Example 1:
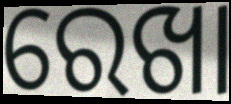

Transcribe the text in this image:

ରେଖା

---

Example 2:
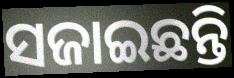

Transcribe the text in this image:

ସଜାଇଛନ୍ତି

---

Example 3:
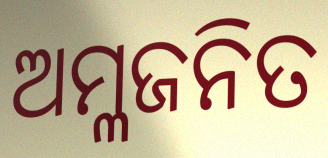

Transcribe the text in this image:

ଅମ୍ଳଜନିତ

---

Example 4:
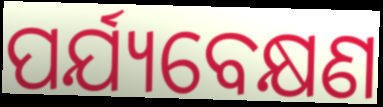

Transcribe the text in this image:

ପର୍ଯ୍ୟବେକ୍ଷଣ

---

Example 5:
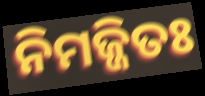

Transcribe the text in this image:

ନିମଜ୍ଜିତଃ